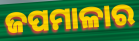
ଜପମାଳାର